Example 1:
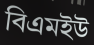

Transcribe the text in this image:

বিএমইউ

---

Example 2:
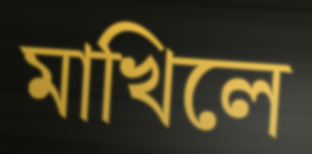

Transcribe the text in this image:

মাখিলে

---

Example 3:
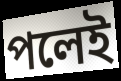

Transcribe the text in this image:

পলেই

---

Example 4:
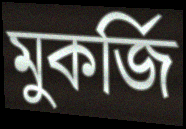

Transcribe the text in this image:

মুকর্জি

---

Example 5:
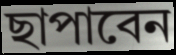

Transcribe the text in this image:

ছাপাবেন